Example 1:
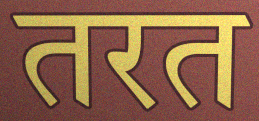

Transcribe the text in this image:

तरत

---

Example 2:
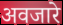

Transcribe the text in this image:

अवजारे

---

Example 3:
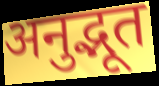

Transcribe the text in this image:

अनुद्भूत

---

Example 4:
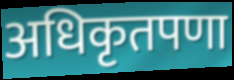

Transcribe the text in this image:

अधिकृतपणा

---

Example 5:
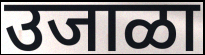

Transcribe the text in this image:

उजाळा